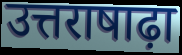
उत्तराषाढ़ा